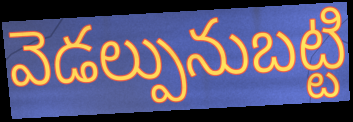
వెడల్పునుబట్టి